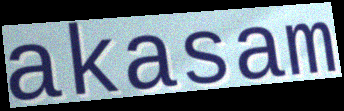
akasam